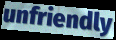
unfriendly